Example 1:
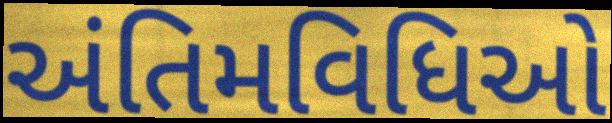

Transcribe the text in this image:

અંતિમવિધિઓ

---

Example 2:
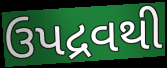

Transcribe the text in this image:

ઉપદ્રવથી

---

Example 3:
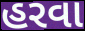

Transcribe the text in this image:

હરવા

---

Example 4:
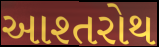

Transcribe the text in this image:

આશ્તરોથ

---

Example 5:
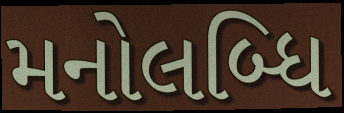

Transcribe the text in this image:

મનોલબ્ધિ